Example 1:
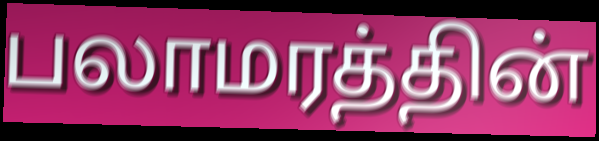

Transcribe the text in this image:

பலாமரத்தின்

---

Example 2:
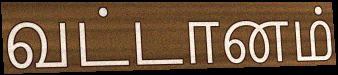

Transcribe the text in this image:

வட்டானம்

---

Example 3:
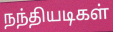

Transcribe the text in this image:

நந்தியடிகள்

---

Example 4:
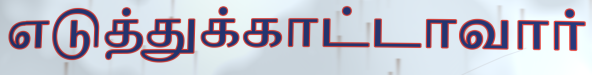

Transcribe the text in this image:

எடுத்துக்காட்டாவார்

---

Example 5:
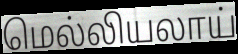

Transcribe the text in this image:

மெல்லியலாய்